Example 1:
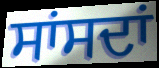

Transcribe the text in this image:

ਸਾਂਸਦਾਂ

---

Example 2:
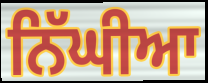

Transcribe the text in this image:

ਨਿੱਘੀਆ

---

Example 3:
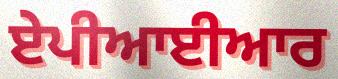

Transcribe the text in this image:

ਏਪੀਆਈਆਰ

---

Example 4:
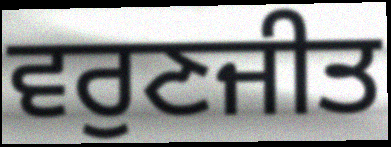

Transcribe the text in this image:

ਵਰੁਣਜੀਤ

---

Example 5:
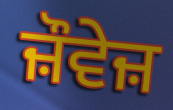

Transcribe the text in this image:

ਜ਼ੌਵੇਜ਼